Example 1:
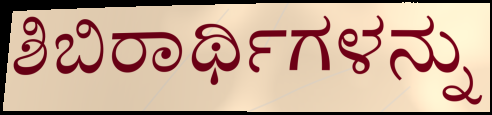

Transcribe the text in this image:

ಶಿಬಿರಾರ್ಥಿಗಳನ್ನು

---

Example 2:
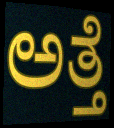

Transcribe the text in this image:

ಅತ್ತೆ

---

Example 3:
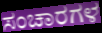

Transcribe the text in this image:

ಸಂಚಾರಗಳ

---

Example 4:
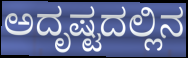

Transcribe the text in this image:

ಅದೃಷ್ಟದಲ್ಲಿನ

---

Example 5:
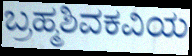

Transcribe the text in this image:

ಬ್ರಹ್ಮಶಿವಕವಿಯ